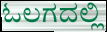
ಓಲಗದಲ್ಲಿ